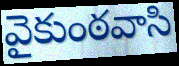
వైకుంఠవాసి